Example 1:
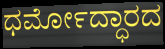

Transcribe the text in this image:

ಧರ್ಮೋದ್ಧಾರದ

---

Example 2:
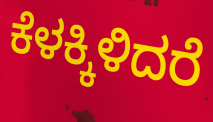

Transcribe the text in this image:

ಕೆಳಕ್ಕಿಳಿದರೆ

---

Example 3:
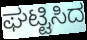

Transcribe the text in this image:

ಘಟ್ಟಿಸಿದ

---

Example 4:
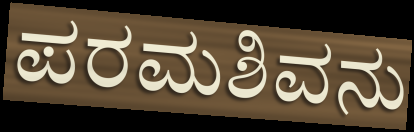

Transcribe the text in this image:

ಪರಮಶಿವನು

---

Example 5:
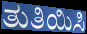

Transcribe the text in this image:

ತುತಿಯಿಸಿ